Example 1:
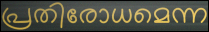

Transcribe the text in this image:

പ്രതിരോധമെന്ന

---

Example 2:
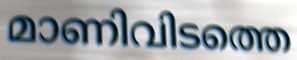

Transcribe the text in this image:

മാണിവിടത്തെ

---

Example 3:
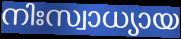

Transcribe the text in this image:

നിഃസ്വാധ്യായ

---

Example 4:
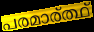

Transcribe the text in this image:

പരമാര്ത്ഥ്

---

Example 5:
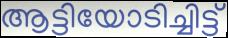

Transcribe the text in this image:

ആട്ടിയോടിച്ചിട്ട്